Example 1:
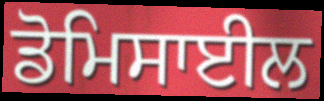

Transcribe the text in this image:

ਡੋਮਿਸਾਈਲ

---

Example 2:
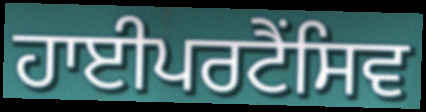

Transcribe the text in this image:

ਹਾਈਪਰਟੈਂਸਿਵ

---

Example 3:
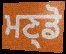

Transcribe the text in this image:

ਮਣ੍ਡੋ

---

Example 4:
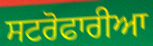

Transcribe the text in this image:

ਸਟਰੋਫਾਰੀਆ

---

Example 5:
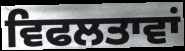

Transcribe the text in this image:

ਵਿਫਲਤਾਵਾਂ